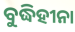
ବୁଦ୍ଧିହୀନା